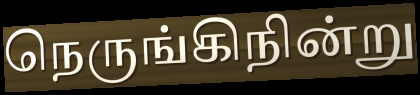
நெருங்கிநின்று